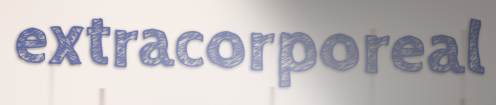
extracorporeal